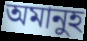
অমানুহ